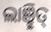
ଲାଞ୍ଛିତ୍